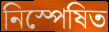
নিস্পেষিত